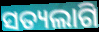
ସତ୍ୟଲାଗି